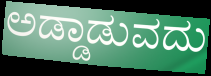
ಅಡ್ಡಾಡುವದು